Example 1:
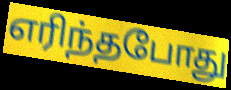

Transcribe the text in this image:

எரிந்தபோது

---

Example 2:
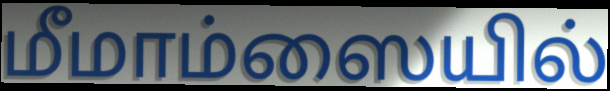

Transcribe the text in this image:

மீமாம்ஸையில்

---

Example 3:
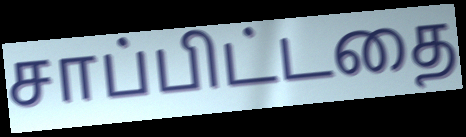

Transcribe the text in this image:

சாப்பிட்டதை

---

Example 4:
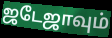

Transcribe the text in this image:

ஜடேஜாவும்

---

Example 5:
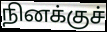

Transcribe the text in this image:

நினக்குச்